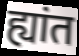
ह्यांत